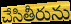
చేసితీరును